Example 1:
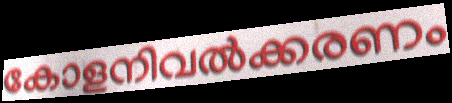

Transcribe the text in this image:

കോളനിവൽക്കരണം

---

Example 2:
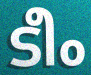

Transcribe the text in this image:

ടീം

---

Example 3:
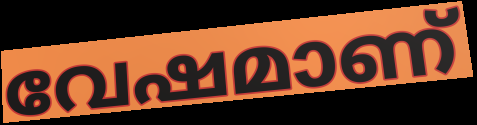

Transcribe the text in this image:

വേഷമാണ്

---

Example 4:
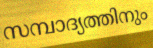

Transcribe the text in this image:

സമ്പാദ്യത്തിനും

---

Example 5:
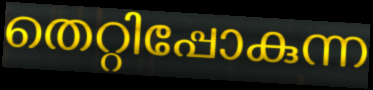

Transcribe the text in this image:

തെറ്റിപ്പോകുന്ന